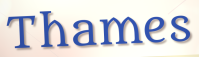
Thames